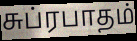
சுப்ரபாதம்